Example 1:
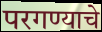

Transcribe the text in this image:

परगण्याचे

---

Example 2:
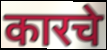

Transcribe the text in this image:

कारचे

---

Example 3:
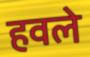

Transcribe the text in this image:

हवले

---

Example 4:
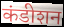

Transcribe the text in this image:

कंडीशन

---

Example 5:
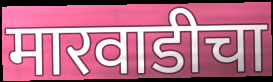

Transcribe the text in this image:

मारवाडीचा